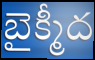
బైక్మీద